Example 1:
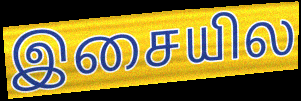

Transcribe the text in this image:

இசையில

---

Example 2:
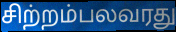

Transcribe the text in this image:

சிற்றம்பலவரது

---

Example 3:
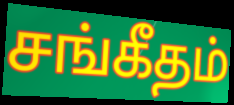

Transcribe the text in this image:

சங்கீதம்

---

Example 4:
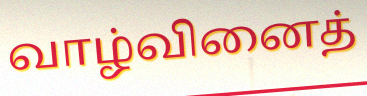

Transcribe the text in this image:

வாழ்வினைத்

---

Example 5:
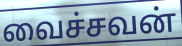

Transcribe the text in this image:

வைச்சவன்